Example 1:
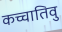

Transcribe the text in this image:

कच्चातिवु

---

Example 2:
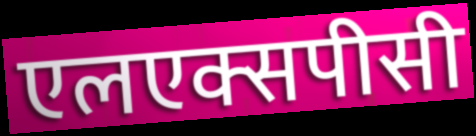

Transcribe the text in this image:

एलएक्सपीसी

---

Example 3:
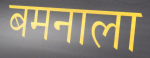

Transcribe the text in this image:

बमनाला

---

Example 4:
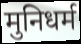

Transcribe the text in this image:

मुनिधर्म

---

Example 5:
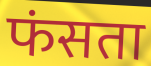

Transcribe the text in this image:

फंसता